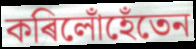
কৰিলোঁহেঁতেন